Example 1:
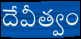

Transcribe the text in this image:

దేవీత్వం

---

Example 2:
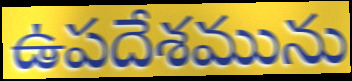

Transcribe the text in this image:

ఉపదేశమును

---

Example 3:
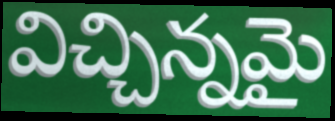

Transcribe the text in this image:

విచ్చిన్నమై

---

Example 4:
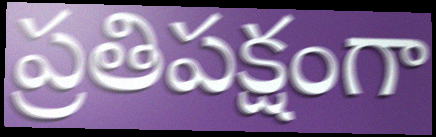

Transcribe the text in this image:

ప్రతిపక్షంగా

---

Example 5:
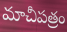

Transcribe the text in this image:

మాచీపత్రం